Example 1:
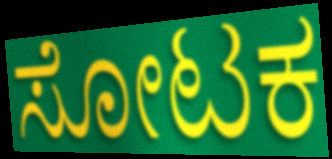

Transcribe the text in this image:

ಸೋಟಕ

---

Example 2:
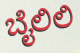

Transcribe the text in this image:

ಬೈಲಿಲಿ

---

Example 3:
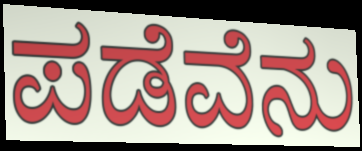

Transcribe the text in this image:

ಪಡೆವೆನು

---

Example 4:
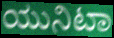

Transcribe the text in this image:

ಯುನಿಟಾ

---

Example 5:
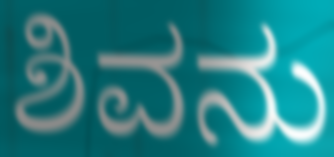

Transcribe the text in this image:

ಶಿವನು